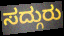
ಸದ್ಗುರು